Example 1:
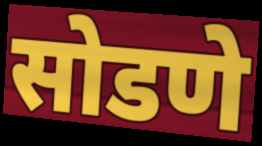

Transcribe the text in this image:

सोडणे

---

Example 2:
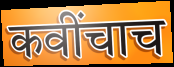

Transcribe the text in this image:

कवींचाच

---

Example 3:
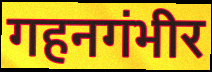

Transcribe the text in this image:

गहनगंभीर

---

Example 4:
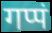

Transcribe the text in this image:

गप्पं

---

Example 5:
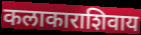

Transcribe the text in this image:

कलाकाराशिवाय